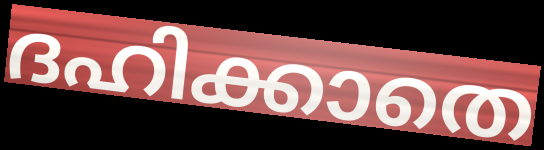
ദഹിക്കാതെ